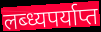
लब्ध्यपर्याप्त